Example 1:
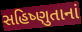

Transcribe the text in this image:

સહિષ્ણુતાનાં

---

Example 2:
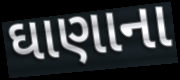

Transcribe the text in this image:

ઘાણાના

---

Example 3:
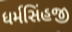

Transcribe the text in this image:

ધર્મસિંહજી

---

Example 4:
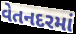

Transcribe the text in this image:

વેતનદરમાં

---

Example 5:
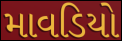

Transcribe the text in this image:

માવડિયો